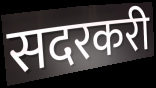
सदरकरी